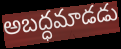
అబద్ధమాడడు